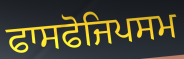
ਫਾਸਫੋਜਿਪਸਮ